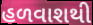
હળવાશથી